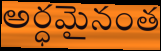
అర్ధమైనంత